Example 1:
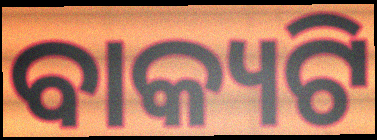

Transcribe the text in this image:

ବାକ୍ୟଟି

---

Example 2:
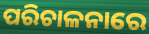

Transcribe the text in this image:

ପରିଚାଳନାରେ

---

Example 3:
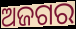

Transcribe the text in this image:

ଅଜଗର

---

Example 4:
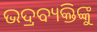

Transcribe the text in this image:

ଭଦ୍ରବ୍ୟକ୍ତିଙ୍କୁ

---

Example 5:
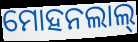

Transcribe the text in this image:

ମୋହନଲାଲ୍